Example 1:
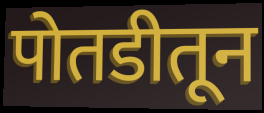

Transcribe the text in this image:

पोतडीतून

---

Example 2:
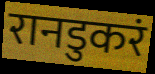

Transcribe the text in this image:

रानडुकरं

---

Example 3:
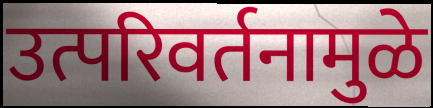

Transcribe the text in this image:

उत्परिवर्तनामुळे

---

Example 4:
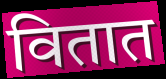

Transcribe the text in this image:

वितात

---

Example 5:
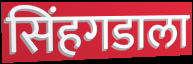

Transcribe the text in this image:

सिंहगडाला